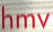
hmv